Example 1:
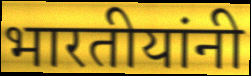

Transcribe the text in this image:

भारतीयांनी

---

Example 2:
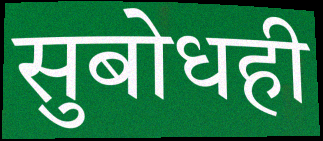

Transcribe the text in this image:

सुबोधही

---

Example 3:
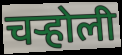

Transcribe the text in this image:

चऱ्होली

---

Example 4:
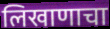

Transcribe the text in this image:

लिखाणाचा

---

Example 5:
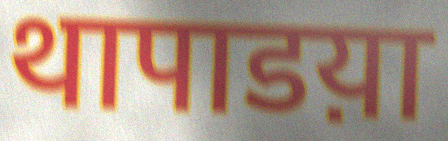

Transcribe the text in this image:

थापाडय़ा